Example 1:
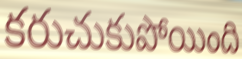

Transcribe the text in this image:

కరుచుకుపోయింది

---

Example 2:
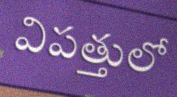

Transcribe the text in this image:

విపత్తులో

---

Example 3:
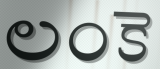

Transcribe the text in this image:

లంకె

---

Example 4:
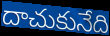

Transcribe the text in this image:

దాచుకునేది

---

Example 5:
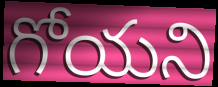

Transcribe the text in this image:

గోయని